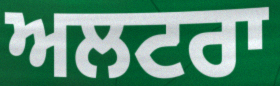
ਅਲਟਰਾ